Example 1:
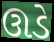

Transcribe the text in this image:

ઊડે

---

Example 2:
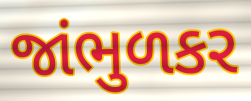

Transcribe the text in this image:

જાંભુળકર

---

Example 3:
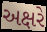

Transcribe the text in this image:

અક્ષરે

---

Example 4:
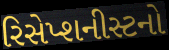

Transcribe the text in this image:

રિસેપ્શનીસ્ટનો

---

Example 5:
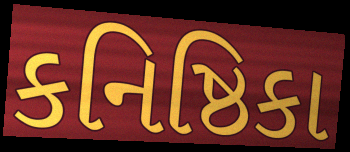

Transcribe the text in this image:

કનિષ્ઠિકા